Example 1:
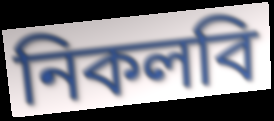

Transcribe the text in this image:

নিকলবি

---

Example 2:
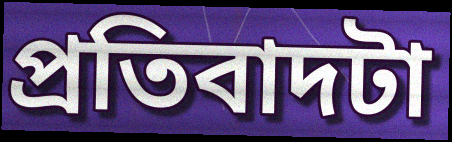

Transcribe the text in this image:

প্রতিবাদটা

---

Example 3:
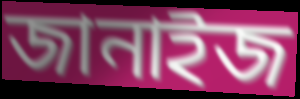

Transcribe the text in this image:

জানাইজ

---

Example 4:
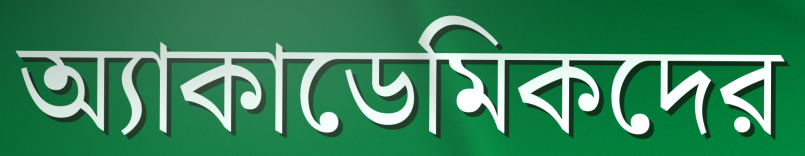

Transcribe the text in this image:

অ্যাকাডেমিকদের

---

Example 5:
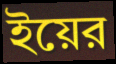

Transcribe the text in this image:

ইয়ের